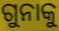
ଗୁନାକୁ